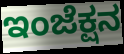
ಇಂಜೆಕ್ಷನ